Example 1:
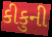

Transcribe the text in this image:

કીકુની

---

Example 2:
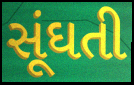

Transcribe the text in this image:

સૂંઘતી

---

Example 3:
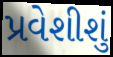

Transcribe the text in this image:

પ્રવેશીશું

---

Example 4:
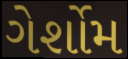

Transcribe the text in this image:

ગેર્શોમ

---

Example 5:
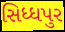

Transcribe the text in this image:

સિધ્ધપુર